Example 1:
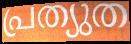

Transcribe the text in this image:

പ്രത്യുത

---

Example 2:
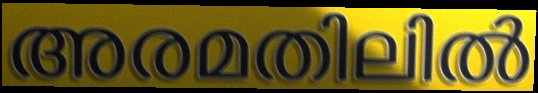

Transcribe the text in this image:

അരമതിലിൽ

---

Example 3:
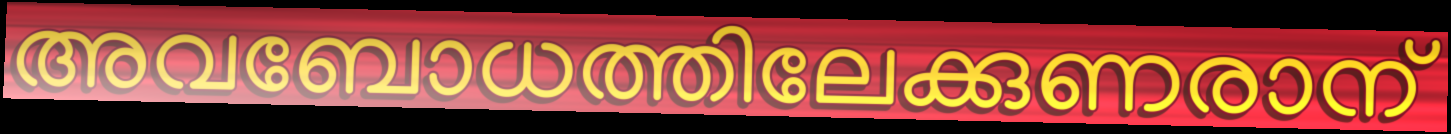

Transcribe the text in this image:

അവബോധത്തിലേക്കുണരാന്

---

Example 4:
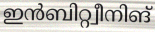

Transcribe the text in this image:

ഇൻബിറ്റ്വീനിങ്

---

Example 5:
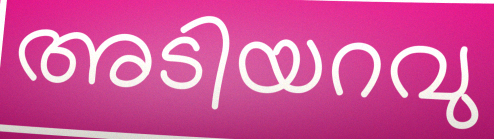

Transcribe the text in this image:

അടിയറവു